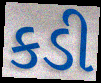
કડી